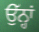
ਉੱਨ੍ਹਾਂ